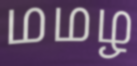
மமழ